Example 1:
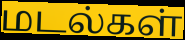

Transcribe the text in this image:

மடல்கள்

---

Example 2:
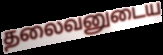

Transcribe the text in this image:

தலைவனுடைய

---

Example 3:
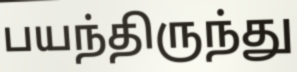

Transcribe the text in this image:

பயந்திருந்து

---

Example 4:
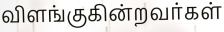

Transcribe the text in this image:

விளங்குகின்றவர்கள்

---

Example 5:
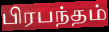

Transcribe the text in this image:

பிரபந்தம்